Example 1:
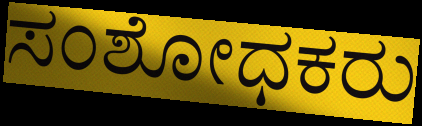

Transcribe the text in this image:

ಸಂಶೋಧಕರು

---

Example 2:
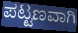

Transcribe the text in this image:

ಪಟ್ಟಣವಾಗಿ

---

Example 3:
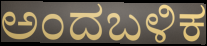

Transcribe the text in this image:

ಅಂದಬಳಿಕ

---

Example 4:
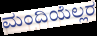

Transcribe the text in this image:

ಮಂದಿಯೆಲ್ಲರ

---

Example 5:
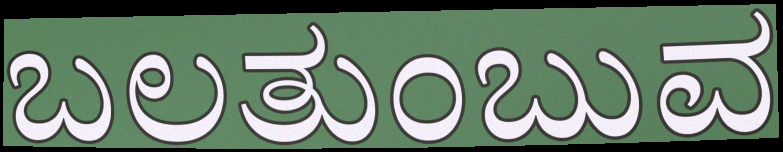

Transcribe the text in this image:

ಬಲತುಂಬುವ